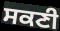
ਸਕਣੀ